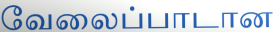
வேலைப்பாடான